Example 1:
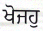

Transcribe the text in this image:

ਖੋਜਹੁ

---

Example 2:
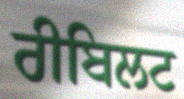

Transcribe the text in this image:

ਰੀਬਿਲਟ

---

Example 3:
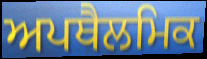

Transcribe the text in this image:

ਅਪਥੈਲਮਿਕ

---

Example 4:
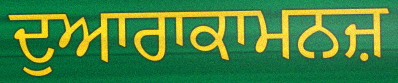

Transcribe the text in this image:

ਦੁਆਰਾਕਾਮਨਜ਼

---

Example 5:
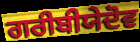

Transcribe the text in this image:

ਗਰੀਬੀਯੇਦੋਵ